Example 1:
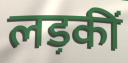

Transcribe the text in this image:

लड़कीं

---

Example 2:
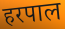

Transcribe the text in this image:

हरपाल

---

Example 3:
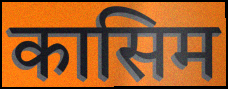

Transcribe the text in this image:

कासिम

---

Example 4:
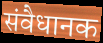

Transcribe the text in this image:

संवैधानक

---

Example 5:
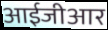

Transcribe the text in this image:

आईजीआर